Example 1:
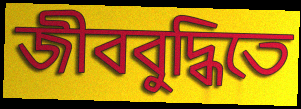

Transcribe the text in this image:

জীববুদ্ধিতে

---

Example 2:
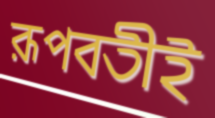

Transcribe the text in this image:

রূপবতীই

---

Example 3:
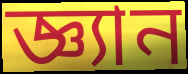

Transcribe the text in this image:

জ্ঞ্যান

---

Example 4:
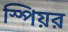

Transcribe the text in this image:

স্পিয়র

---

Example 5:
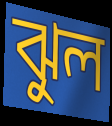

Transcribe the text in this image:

ঝুল